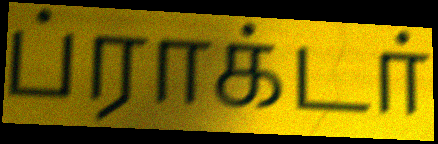
ப்ராக்டர்